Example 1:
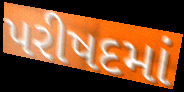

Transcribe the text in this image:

પરીષદમાં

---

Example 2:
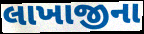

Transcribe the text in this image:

લાખાજીના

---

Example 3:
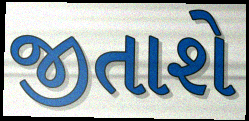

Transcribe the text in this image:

જીતાશે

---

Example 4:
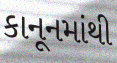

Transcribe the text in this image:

કાનૂનમાંથી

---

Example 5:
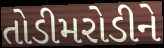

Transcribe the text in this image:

તોડીમરોડીને